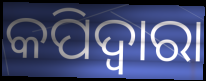
କପିଦ୍ୱାରା